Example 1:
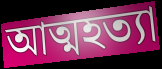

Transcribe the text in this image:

আত্মহত্যা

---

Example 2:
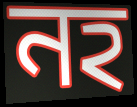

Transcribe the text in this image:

নহ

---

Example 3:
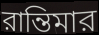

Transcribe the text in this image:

রান্তিমার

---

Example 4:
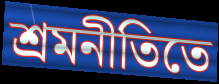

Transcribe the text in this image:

শ্রমনীতিতে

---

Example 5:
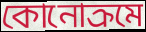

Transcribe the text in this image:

কোনোক্রমে